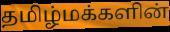
தமிழ்மக்களின்